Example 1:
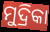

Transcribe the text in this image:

ମୁଦ୍ରିକା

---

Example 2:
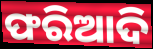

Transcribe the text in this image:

ଫରିଆଦି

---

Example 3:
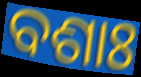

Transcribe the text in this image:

ବଶାଃ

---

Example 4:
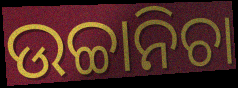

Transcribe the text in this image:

ଉଚ୍ଚାନିଚା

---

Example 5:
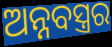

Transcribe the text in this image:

ଅନ୍ନବସ୍ତ୍ରର